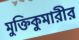
মুক্তিকুমারীর